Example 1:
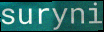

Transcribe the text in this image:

suryni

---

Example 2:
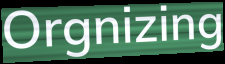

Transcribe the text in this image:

Orgnizing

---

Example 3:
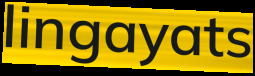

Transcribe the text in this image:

lingayats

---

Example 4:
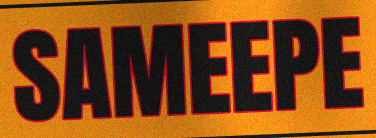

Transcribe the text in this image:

SAMEEPE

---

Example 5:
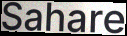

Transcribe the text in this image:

Sahare